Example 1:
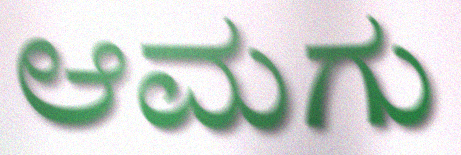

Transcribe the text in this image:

ಆಮಗು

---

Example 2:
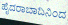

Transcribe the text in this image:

ಹೈದರಾಬಾದಿನಿಂದ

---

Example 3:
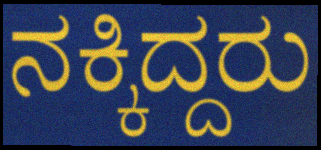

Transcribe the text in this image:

ನಕ್ಕಿದ್ದರು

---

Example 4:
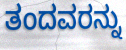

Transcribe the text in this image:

ತಂದವರನ್ನು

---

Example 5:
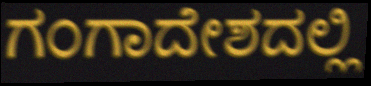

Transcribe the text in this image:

ಗಂಗಾದೇಶದಲ್ಲಿ